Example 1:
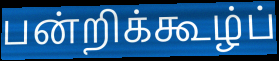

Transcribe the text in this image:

பன்றிக்கூழ்ப்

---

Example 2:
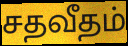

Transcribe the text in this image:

சதவீதம்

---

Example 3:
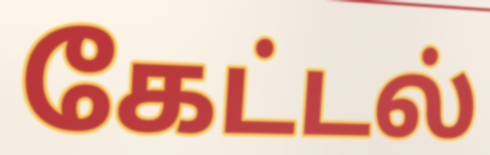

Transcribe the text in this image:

கேட்டல்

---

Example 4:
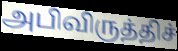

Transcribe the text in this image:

அபிவிருத்திச்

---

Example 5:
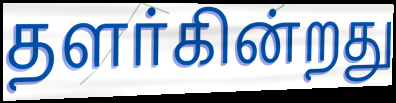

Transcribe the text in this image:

தளர்கின்றது